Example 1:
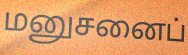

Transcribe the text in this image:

மனுசனைப்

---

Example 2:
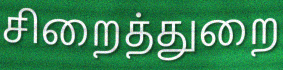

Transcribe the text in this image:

சிறைத்துறை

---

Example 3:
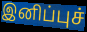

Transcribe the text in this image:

இனிப்புச்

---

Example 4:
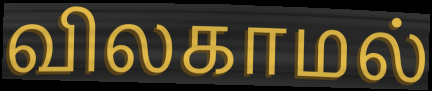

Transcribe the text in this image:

விலகாமல்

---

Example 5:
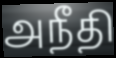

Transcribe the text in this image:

அநீதி